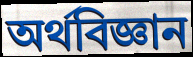
অৰ্থবিজ্ঞান